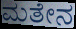
ಮತೇನ